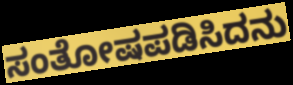
ಸಂತೋಷಪಡಿಸಿದನು